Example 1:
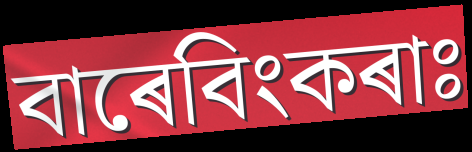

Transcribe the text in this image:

বাৰেবিংকৰাঃ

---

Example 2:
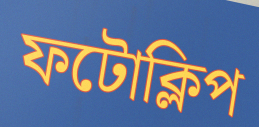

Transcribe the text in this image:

ফটোক্লিপ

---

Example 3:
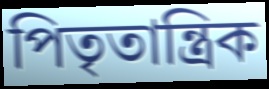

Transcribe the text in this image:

পিতৃতান্ত্ৰিক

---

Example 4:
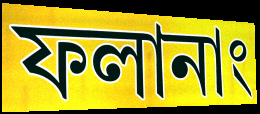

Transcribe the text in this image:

ফলানাং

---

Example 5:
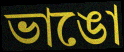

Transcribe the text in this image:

ভাঙো